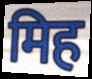
मिह